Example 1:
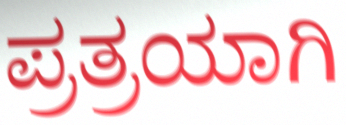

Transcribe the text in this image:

ಪ್ರತ್ರಯಾಗಿ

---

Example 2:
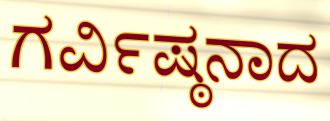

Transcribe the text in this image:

ಗರ್ವಿಷ್ಠನಾದ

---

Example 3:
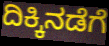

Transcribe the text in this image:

ದಿಕ್ಕಿನಡೆಗೆ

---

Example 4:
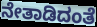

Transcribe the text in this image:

ನೇತಾಡಿದಂತೆ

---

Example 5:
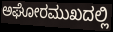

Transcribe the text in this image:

ಅಘೋರಮುಖದಲ್ಲಿ